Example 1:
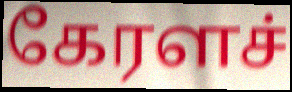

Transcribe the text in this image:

கேரளச்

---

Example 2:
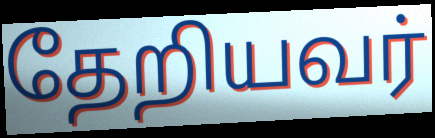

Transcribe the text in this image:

தேறியவர்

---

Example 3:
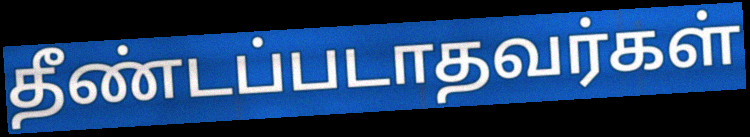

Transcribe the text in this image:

தீண்டப்படாதவர்கள்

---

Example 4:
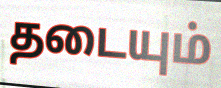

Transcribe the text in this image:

தடையும்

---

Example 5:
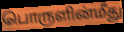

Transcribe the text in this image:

பொருளின்மீது